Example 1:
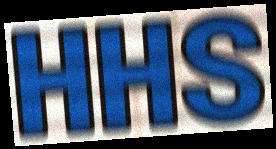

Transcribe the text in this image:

HHS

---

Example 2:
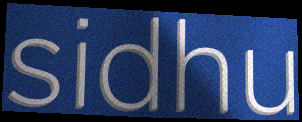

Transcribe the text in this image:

sidhu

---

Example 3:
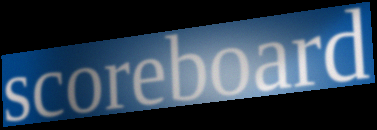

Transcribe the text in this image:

scoreboard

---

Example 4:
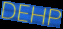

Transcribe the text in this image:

DEHP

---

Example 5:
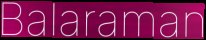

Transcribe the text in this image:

Balaraman